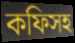
কফিসহ